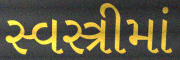
સ્વસ્ત્રીમાં